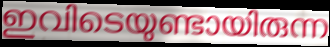
ഇവിടെയുണ്ടായിരുന്ന